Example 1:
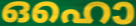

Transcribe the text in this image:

ഒഹൊ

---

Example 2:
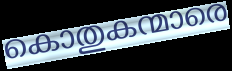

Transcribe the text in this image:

കൊതുകന്മാരെ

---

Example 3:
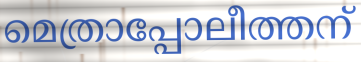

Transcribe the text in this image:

മെത്രാപ്പോലീത്തന്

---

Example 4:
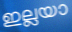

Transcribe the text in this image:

ഇല്ലയാ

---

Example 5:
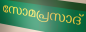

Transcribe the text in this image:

സോമപ്രസാദ്